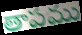
తాపము